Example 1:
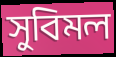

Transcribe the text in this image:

সুবিমল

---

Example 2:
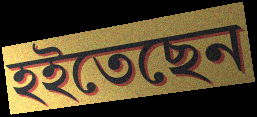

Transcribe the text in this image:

হইতেছেন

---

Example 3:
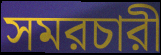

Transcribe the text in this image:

সমরচারী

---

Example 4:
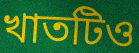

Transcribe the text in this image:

খাতটিও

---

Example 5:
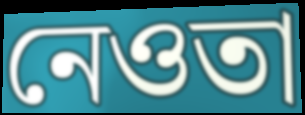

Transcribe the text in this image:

নেওতা